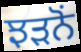
ਝੜਨੋਂ